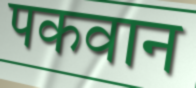
पकवान